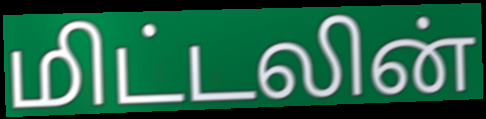
மிட்டலின்